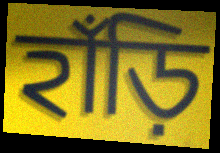
হাঁড়ি